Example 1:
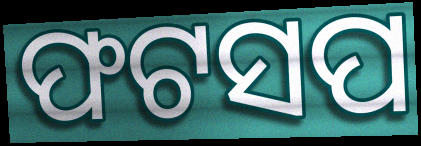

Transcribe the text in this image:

ଫଟସପ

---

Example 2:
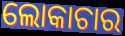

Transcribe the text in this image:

ଲୋକାଚାର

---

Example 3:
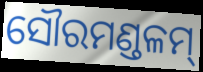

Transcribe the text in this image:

ସୌରମଣ୍ଡଳମ୍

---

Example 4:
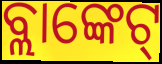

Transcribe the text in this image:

ବ୍ଲାଙ୍କେଟ୍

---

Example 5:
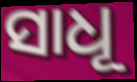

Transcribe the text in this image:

ସାଧୂ